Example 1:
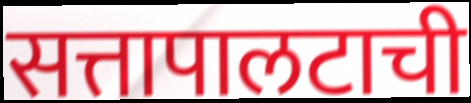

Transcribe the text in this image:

सत्तापालटाची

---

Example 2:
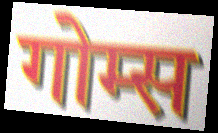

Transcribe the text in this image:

गोम्स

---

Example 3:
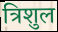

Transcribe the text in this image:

त्रिशुल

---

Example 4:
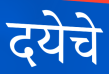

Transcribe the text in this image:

दयेचे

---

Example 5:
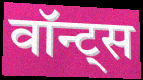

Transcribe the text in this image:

वॉन्ट्स